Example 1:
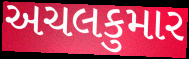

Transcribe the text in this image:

અચલકુમાર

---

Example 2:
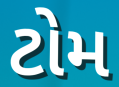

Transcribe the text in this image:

ટોમ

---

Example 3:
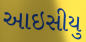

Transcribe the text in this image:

આઇસીયુ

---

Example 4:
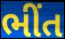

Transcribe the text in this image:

ભીંત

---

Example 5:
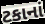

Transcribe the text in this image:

ટકાનાં